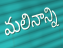
మలినాన్ని